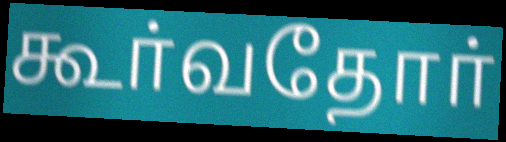
கூர்வதோர்